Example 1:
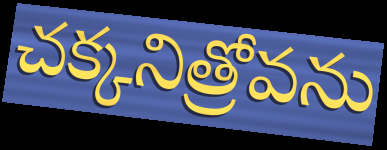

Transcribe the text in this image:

చక్కనిత్రోవను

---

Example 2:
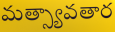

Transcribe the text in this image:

మత్స్యావతార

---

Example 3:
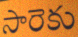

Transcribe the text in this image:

సారెకు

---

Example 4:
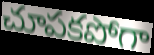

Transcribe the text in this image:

చూపకపోగా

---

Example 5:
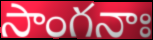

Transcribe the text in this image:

సాంగనాః